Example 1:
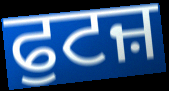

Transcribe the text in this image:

ਫੁਟਜ਼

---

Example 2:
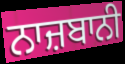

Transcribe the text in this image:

ਨਾਜ਼ਬਾਨੀ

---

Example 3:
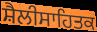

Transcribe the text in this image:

ਸ਼ੈਲੀਸਾਹਿਤਕ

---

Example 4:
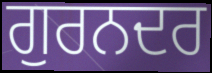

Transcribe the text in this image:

ਗੁਰਨਦਰ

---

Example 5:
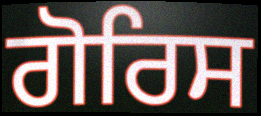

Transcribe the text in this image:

ਗੋਰਿਸ